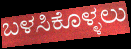
ಬಳಸಿಕೊಳ್ಳಲು